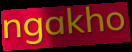
ngakho